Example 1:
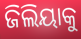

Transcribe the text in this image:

ଜିଲିୟାକୁ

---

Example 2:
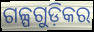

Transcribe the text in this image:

ଗଳ୍ପଗୁଡ଼ିକର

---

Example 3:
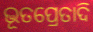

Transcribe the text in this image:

ଭୂତପ୍ରେତାଦି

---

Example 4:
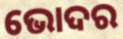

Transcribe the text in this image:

ଭୋଦର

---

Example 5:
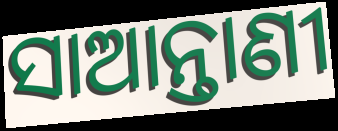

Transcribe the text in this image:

ସାଆନ୍ତାଣୀ